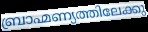
ബ്രാഹ്മണ്യത്തിലേക്കു